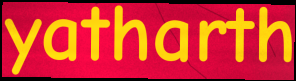
yatharth